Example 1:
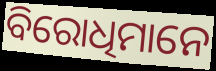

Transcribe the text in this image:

ବିରୋଧିମାନେ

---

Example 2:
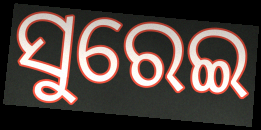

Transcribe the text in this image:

ସୁରେଇ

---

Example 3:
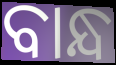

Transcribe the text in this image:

ବାନ୍ଧ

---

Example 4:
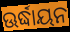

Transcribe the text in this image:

ଊର୍ଦ୍ଧାୟନ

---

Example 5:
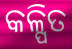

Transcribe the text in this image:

କଳ୍ପିତ